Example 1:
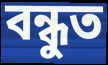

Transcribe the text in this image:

বন্ধুত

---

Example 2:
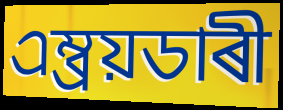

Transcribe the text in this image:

এম্ব্ৰয়ডাৰী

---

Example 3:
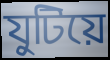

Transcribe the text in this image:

যুটিয়ে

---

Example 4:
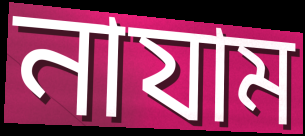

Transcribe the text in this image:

নাযাম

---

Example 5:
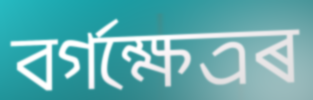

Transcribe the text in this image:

বৰ্গক্ষেত্ৰৰ